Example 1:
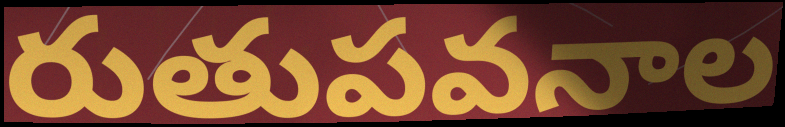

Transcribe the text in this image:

రుతుపవనాల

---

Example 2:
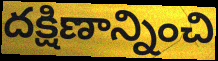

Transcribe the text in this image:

దక్షిణాన్నించి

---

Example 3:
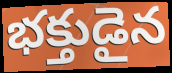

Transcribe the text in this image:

భక్తుడైన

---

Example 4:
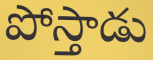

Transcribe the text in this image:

పోస్తాడు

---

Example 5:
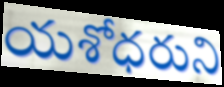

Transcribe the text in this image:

యశోధరుని